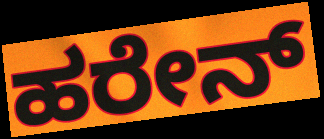
ಹರೇನ್